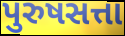
પુરુષસત્તા